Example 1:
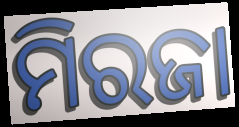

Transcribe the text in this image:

ମିରଜା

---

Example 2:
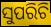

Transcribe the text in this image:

ସୁପରିଚି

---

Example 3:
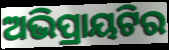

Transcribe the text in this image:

ଅଭିପ୍ରାୟଟିର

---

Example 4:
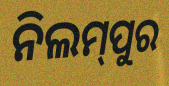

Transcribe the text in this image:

ନିଲମ୍‍ପୁର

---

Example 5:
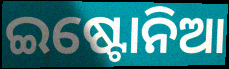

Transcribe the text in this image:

ଇଷ୍ଟୋନିଆ